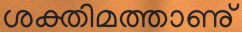
ശക്തിമത്താണു്